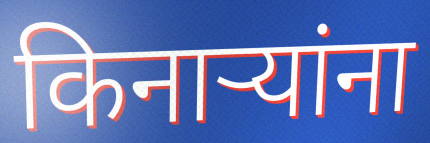
किनाऱ्यांना